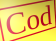
Cod